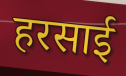
हरसाई